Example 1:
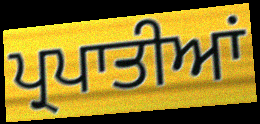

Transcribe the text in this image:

ਪ੍ਰਪਾਤੀਆਂ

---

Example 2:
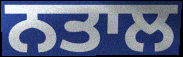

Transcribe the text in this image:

ਨਤਾਲ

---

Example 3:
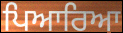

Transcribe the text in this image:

ਪਿਆਰਿਆ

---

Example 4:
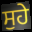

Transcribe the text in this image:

ਸੁਹੇ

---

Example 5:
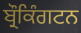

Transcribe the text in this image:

ਬ੍ਰੌਕਿੰਗਟਨ